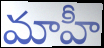
మాహీ